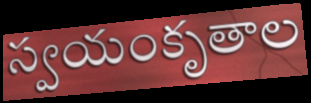
స్వయంకృతాల